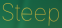
Steep